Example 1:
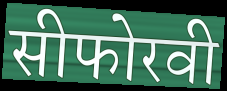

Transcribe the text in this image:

सीफोरवी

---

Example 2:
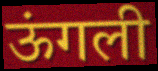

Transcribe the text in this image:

ऊंगली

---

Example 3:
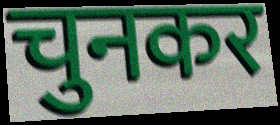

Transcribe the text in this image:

चुनकर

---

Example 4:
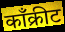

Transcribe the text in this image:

काँक्रीट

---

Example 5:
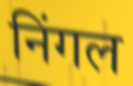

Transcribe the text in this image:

निंगल